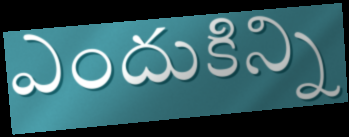
ఎందుకిన్ని